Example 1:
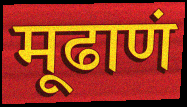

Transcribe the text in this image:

मूढाणं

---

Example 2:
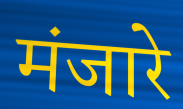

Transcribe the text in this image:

मंजारे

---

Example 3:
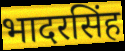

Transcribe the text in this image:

भादरसिंह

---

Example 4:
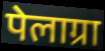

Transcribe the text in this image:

पेलाग्रा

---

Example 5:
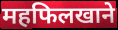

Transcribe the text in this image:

महफिलखाने